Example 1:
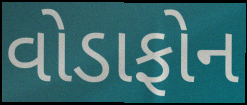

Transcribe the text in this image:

વોડાફોન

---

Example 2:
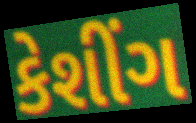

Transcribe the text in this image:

કેશીંગ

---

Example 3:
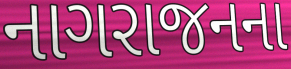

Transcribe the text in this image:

નાગરાજનના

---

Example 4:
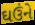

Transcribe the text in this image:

ઘઉંને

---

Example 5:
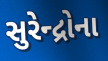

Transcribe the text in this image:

સુરેન્દ્રોના